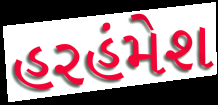
હરહંમેશ